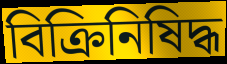
বিক্রিনিষিদ্ধ